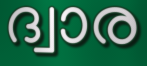
ദ്വാര